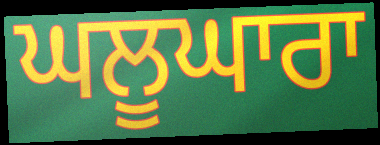
ਘਲੂਘਾਰਾ